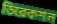
ডিরেকশন